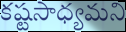
కష్టసాధ్యమని